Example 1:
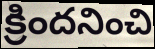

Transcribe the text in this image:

క్రిందనించి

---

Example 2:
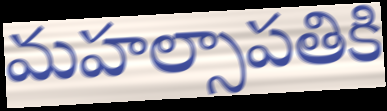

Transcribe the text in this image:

మహల్సాపతికి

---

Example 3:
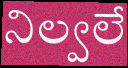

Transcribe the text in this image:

నిల్వలే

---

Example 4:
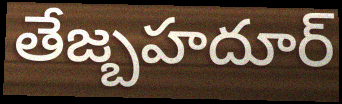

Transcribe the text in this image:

తేజ్బహదూర్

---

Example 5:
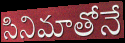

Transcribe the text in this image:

సినిమాతోనే